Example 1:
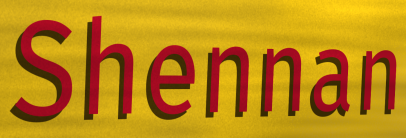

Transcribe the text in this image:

Shennan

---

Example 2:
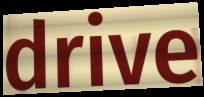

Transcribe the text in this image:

drive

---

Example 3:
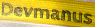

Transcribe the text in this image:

Devmanus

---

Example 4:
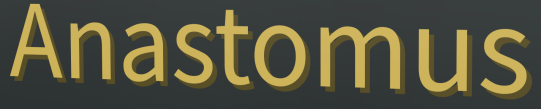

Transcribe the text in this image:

Anastomus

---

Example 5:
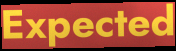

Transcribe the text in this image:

Expected